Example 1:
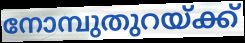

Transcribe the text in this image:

നോമ്പുതുറയ്ക്ക്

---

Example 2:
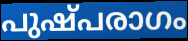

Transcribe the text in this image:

പുഷ്പരാഗം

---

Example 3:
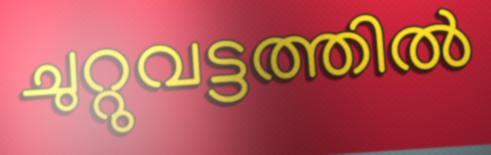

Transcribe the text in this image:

ചുറ്റുവട്ടത്തിൽ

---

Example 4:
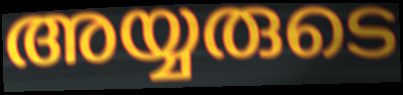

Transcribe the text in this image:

അയ്യരുടെ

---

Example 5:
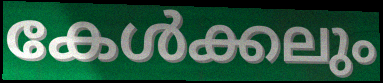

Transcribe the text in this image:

കേൾക്കലും